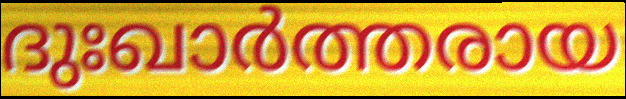
ദുഃഖാർത്തരായ